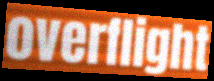
overflight